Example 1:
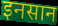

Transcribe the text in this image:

इनसान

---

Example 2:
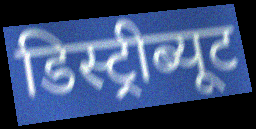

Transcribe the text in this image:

डिस्ट्रीब्यूट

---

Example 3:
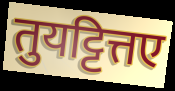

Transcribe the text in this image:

तुयट्टित्तए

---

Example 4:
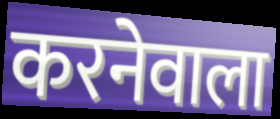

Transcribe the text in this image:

करनेवाला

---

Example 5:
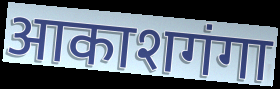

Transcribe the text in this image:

आकाशगंगा